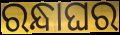
ରନ୍ଧାଘର